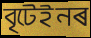
বৃটেইনৰ